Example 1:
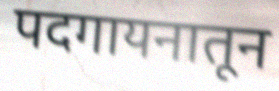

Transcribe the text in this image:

पदगायनातून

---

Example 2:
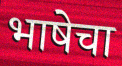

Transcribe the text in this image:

भाषेचा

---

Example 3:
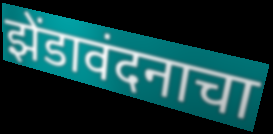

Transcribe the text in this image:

झेंडावंदनाचा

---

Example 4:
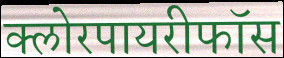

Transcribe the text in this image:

क्लोरपायरीफॉस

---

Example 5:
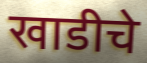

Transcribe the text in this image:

खाडीचे